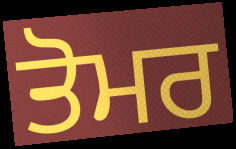
ਤੋਮਰ